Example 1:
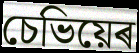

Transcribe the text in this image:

চেভিয়েৰ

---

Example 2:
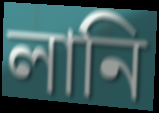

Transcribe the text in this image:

লানি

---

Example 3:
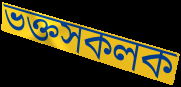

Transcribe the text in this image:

ভক্তসকলক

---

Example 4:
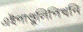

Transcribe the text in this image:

এইপাণ্ডুলিপিখনি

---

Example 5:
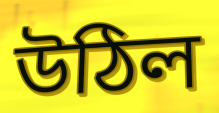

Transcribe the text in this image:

উঠিল